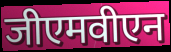
जीएमवीएन